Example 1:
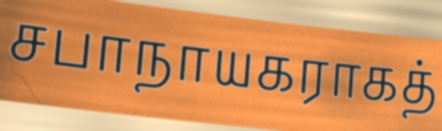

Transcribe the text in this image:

சபாநாயகராகத்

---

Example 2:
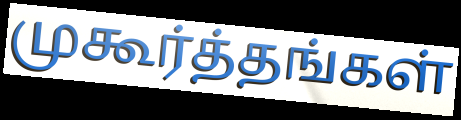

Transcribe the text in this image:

முகூர்த்தங்கள்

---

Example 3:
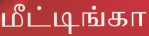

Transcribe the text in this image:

மீட்டிங்கா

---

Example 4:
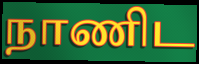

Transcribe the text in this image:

நாணிட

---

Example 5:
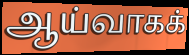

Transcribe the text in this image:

ஆய்வாகக்